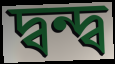
দ্বন্দ্ব